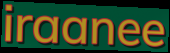
iraanee